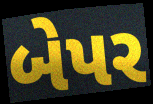
બેપર